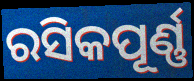
ରସିକପୂର୍ଣ୍ଣ